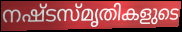
നഷ്ടസ്മൃതികളുടെ